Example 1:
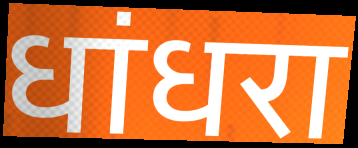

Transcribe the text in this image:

धांधरा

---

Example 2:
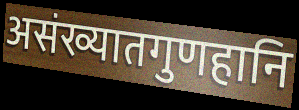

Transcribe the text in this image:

असंख्यातगुणहानि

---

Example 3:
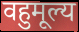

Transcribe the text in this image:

वहुमूल्य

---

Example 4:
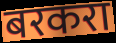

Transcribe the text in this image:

बरकरा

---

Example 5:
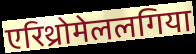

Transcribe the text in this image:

एरिथ्रोमेललगिया